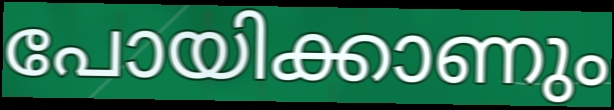
പോയിക്കാണും